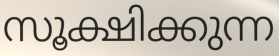
സൂക്ഷിക്കുന്ന